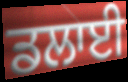
ਡਲਾਈ